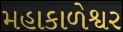
મહાકાળેશ્વર